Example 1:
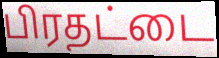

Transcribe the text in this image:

பிரதட்டை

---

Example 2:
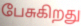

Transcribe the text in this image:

பேசுகிறது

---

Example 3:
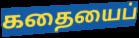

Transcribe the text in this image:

கதையைப்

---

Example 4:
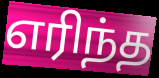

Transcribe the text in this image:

எரிந்த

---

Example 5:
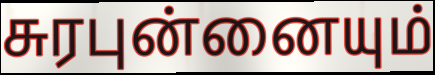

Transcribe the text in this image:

சுரபுன்னையும்